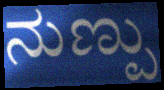
ನುಣ್ಪು